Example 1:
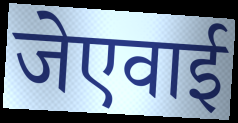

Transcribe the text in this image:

जेएवाई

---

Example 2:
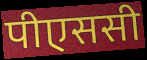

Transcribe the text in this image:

पीएससी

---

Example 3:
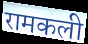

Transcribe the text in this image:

रामकली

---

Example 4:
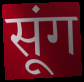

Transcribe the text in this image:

सूंग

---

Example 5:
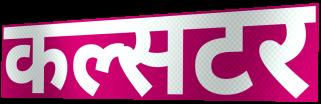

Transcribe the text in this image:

कल्सटर